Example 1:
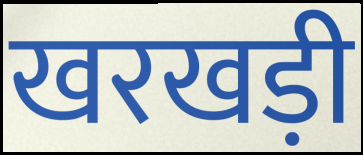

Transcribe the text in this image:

खरखड़ी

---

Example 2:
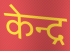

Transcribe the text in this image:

केन्द्र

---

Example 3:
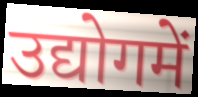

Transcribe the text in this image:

उद्योगमें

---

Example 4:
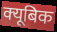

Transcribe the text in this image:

क्‍यूबिक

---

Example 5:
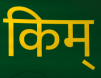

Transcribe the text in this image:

किम्